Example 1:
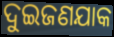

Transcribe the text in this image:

ଦୁଇଜଣଯାକ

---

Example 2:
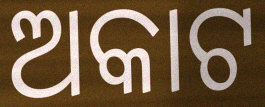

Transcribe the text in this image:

ଅକାଟ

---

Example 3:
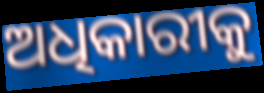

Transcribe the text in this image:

ଅଧିକାରୀକୁ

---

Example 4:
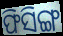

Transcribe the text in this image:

ଫିସିଙ୍ଗ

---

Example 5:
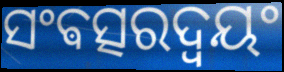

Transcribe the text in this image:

ସଂଵତ୍ସରଦ୍ଵୟଂ